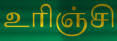
உரிஞ்சி